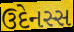
ઉદેનસ્સ